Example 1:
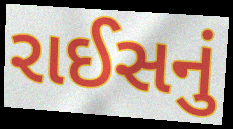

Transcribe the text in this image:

રાઈસનું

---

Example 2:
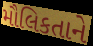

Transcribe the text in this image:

મૌલિકતાને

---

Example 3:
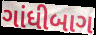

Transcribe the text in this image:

ગાંધીબાગ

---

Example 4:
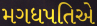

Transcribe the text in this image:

મગધપતિએ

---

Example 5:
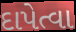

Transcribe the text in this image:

દાપેત્વા